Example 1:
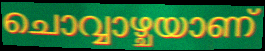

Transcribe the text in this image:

ചൊവ്വാഴ്ചയാണ്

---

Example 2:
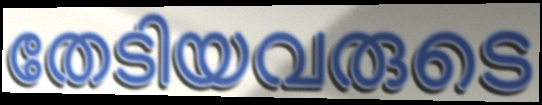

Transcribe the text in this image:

തേടിയവരുടെ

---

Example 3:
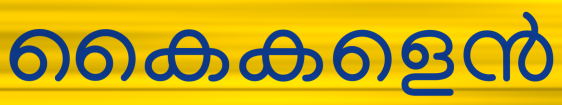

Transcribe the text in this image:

കൈകളെൻ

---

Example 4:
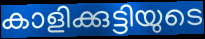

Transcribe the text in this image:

കാളിക്കുട്ടിയുടെ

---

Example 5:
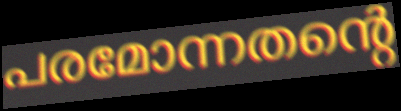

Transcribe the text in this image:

പരമോന്നതന്റെ